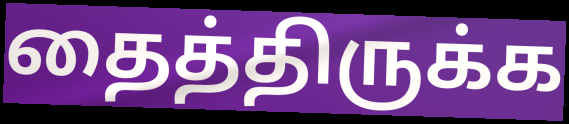
தைத்திருக்க